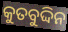
କୁତବୁଦ୍ଦିନ